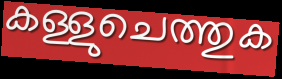
കള്ളുചെത്തുക